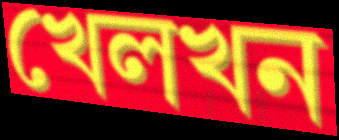
খেলখন